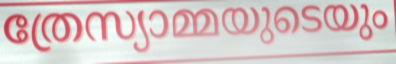
ത്രേസ്യാമ്മയുടെയും